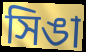
সিঙা